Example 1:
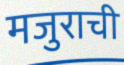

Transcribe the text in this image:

मजुराची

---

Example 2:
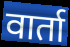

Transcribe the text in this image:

वार्ता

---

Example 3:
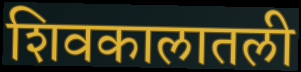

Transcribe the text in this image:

शिवकालातली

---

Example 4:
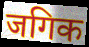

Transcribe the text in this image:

जगिक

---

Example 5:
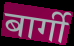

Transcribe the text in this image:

बार्गी